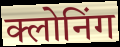
क्लोनिंग